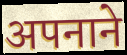
अपनाने